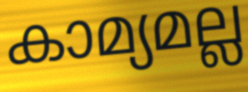
കാമ്യമല്ല